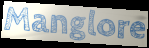
Manglore